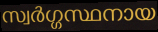
സ്വർഗ്ഗസ്ഥനായ